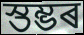
স্তম্ভৰ